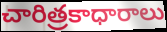
చారిత్రకాధారాలు